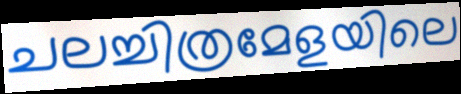
ചലച്ചിത്രമേളയിലെ